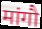
मांगौ